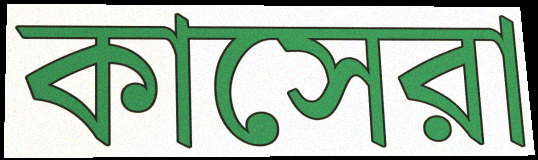
কাসেরা